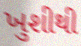
ખુશીથી